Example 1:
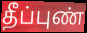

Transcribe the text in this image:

தீப்புண்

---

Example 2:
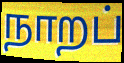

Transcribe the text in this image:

நாறப்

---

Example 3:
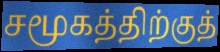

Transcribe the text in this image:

சமூகத்திற்குத்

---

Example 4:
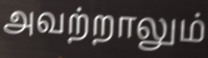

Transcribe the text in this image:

அவற்றாலும்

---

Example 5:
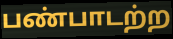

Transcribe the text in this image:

பண்பாடற்ற